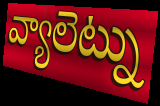
వ్యాలెట్ను